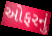
ઓફરનું